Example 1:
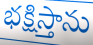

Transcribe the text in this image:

భక్షిస్తాను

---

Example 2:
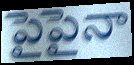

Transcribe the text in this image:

పైపైనా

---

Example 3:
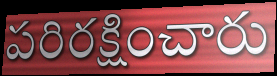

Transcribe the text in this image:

పరిరక్షించారు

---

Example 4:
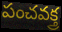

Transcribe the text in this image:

పంచవక్త్ర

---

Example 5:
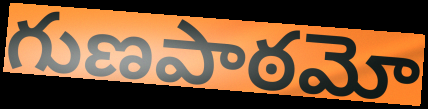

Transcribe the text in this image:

గుణపాఠమో